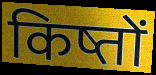
किष्तों